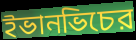
ইভানভিচের